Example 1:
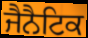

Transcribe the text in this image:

ਜੈਨੈਟਿਕ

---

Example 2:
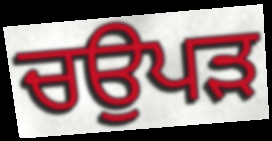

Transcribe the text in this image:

ਚਉਪੜ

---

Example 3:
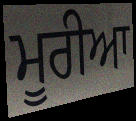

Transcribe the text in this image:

ਮੂਰੀਆ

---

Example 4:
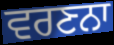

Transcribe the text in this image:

ਵਰਣਨਾ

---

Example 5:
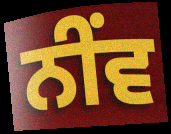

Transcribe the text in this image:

ਨੀਂਵ